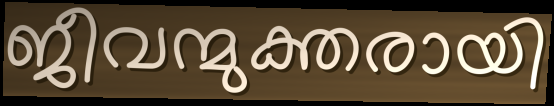
ജീവന്മുക്തരായി